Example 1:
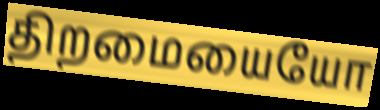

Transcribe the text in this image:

திறமையையோ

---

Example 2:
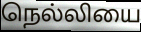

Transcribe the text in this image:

நெல்லியை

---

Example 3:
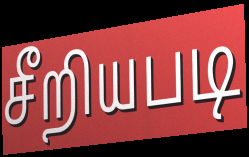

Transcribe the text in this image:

சீறியபடி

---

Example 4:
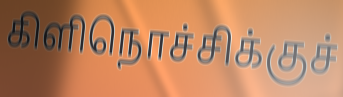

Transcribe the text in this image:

கிளிநொச்சிக்குச்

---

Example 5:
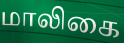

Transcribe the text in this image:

மாலிகை